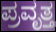
ಪ್ರವೃತ್ತ